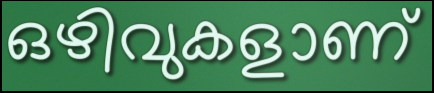
ഒഴിവുകളാണ്